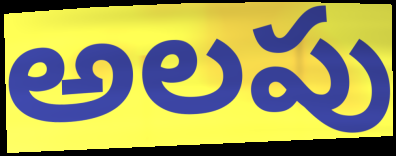
అలపు